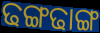
ଢଙ୍ଗଢାଙ୍ଗ